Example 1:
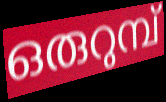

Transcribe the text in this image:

ഒരുറുമ്പ്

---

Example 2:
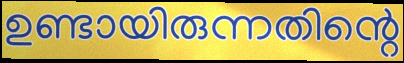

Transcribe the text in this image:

ഉണ്ടായിരുന്നതിന്റെ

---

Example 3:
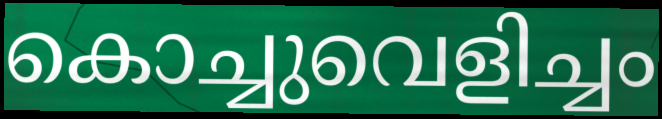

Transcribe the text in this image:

കൊച്ചുവെളിച്ചം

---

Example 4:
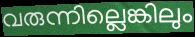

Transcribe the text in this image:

വരുന്നില്ലെങ്കിലും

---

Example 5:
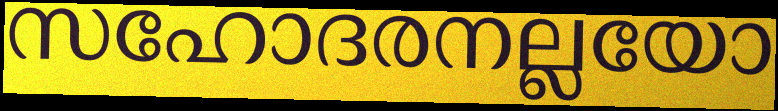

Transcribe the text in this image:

സഹോദരനല്ലയോ